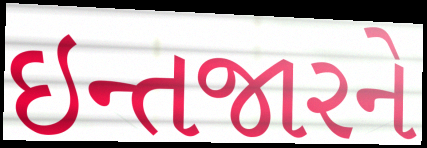
ઇન્તજારને